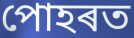
পোহৰত